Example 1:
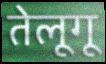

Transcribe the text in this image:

तेलूगू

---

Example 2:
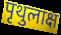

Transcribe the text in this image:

पृथुलाक्ष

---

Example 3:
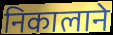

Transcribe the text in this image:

निकालाने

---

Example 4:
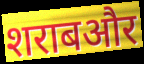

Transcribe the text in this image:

शराबऔर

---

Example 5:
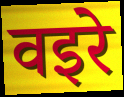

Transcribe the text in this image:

वइरे